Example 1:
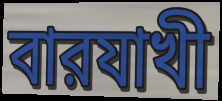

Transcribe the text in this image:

বারযাখী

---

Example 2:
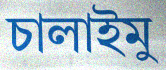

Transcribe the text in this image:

চালাইমু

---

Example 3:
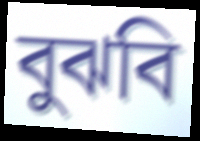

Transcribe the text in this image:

বুঝবি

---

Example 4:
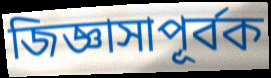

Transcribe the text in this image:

জিজ্ঞাসাপূর্বক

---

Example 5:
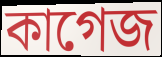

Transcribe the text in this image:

কাগেজ